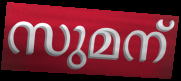
സുമന്